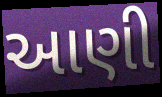
આણી